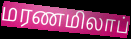
மரணமிலாப்